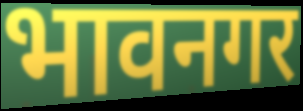
भावनगर